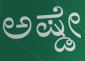
ಅಷ್ಡೇ